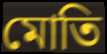
মোতি